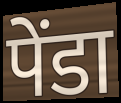
पेंडा